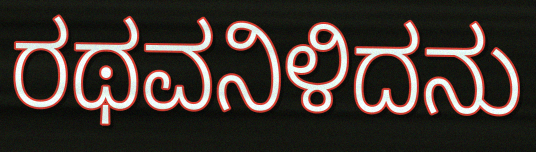
ರಥವನಿಳಿದನು